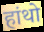
हांथो